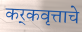
कर्कवृत्ताचे